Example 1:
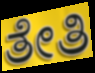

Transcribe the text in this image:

ತೇತಿ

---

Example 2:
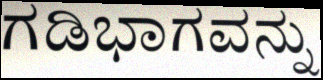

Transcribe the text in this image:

ಗಡಿಭಾಗವನ್ನು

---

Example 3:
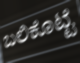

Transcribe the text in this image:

ಬಲಿಕೊಟ್ಟೆ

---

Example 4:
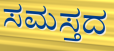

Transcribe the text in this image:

ಸಮಸ್ತದ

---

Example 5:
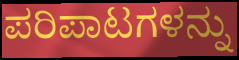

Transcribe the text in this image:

ಪರಿಪಾಟಗಳನ್ನು